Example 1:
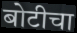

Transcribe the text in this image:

बोटीचा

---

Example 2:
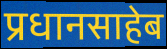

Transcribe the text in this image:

प्रधानसाहेब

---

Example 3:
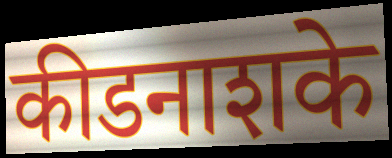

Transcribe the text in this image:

कीडनाशके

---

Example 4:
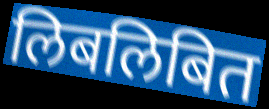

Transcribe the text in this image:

लिबलिबित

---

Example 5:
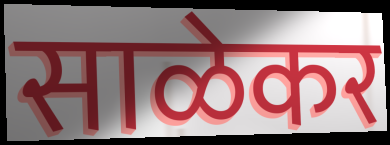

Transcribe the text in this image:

साळेकर